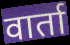
वार्ता